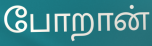
போறான்